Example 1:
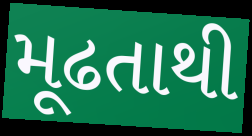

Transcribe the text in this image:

મૂઢતાથી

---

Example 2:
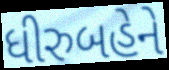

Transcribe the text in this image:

ધીરુબહેને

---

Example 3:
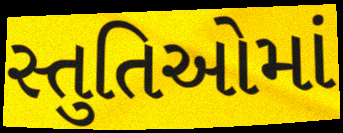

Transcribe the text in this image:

સ્તુતિઓમાં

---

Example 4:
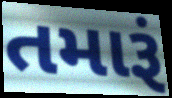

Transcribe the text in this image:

તમારૂં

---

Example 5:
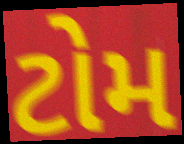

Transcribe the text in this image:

ટોમ